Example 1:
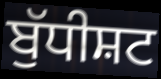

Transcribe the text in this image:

ਬੁੱਧੀਸ਼ਟ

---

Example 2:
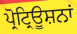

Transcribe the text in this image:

ਪ੍ਰੋਟ੍ਰਿਊਸ਼ਨਾਂ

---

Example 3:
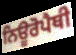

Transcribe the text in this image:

ਨਿਊਰੋਪੈਥੀ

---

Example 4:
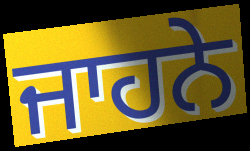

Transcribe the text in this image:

ਜਾਹਨੇ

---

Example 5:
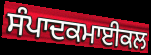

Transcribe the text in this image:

ਸੰਪਾਦਕਮਾਈਕਲ